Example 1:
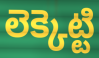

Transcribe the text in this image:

లెక్కెట్టి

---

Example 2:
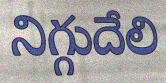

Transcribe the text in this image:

నిగ్గుదేలి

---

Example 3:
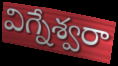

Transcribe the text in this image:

విగ్నేశ్వరా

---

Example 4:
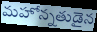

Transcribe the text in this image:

మహోన్నతుడైన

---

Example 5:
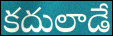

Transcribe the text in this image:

కదులాడే